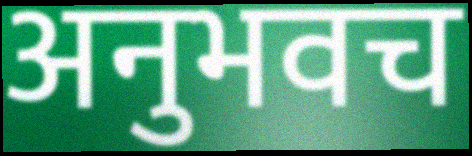
अनुभवच